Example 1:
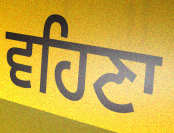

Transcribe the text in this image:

ਵਹਿਣਾ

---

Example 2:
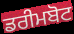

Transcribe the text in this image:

ਡਰੀਮਬੋਟ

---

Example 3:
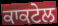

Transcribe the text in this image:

ਕਾਕਟੇਲ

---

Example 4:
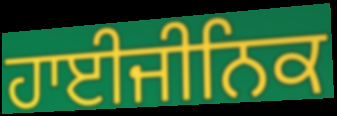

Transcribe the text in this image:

ਹਾਈਜੀਨਿਕ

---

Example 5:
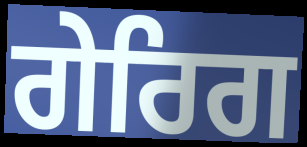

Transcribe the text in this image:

ਗੇਰਿਗ